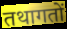
तथागतों